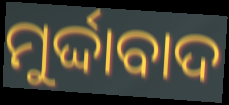
ମୁର୍ଦ୍ଦାବାଦ